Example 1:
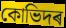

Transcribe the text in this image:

কোভিদৰ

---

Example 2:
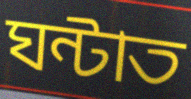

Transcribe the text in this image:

ঘন্টাত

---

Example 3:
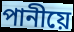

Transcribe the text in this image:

পানীয়ে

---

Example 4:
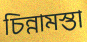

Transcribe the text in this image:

চিন্নামস্তা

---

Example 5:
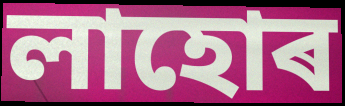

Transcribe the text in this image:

লাহোৰ